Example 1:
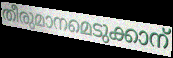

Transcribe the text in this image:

തീരുമാനമെടുക്കാന്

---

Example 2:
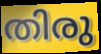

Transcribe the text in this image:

തിരു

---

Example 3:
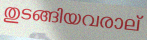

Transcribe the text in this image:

തുടങ്ങിയവരാല്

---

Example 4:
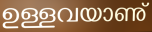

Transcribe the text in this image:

ഉള്ളവയാണു്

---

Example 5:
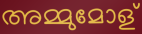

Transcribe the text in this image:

അമ്മുമോള്